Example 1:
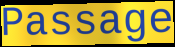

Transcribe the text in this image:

Passage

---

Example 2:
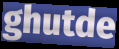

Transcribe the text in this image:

ghutde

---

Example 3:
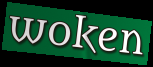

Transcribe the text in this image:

woken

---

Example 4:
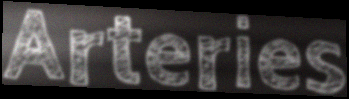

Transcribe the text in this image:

Arteries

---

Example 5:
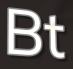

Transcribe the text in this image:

Bt